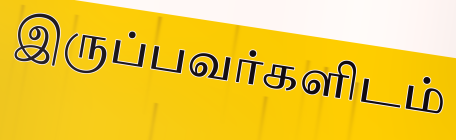
இருப்பவர்களிடம்